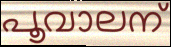
പൂവാലന്